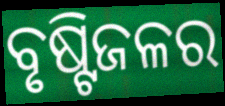
ବୃଷ୍ଟିଜଳର